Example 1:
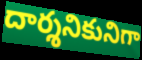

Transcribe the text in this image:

దార్శనికునిగా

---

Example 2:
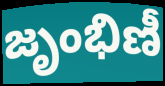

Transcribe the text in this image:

జృంభిణీ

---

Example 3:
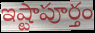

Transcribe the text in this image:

ఇష్టాపూర్తం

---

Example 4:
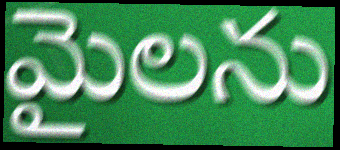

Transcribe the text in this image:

మైలను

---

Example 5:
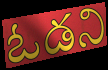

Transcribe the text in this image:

ఓడని